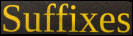
Suffixes